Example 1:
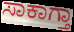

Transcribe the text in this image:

ಸಾಕಾಗ್ತಾ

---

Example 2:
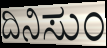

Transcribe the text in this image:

ದಿನಿಸುಂ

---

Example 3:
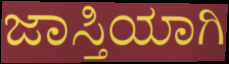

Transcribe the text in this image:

ಜಾಸ್ತಿಯಾಗಿ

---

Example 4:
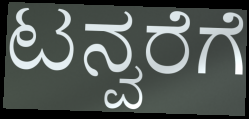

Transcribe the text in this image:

ಟನ್ವರೆಗೆ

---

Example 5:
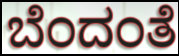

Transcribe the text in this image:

ಬೆಂದಂತೆ